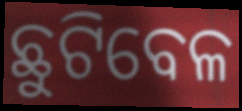
ଛୁଟିବେଳ